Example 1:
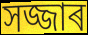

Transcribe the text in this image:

সজ্জাৰ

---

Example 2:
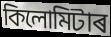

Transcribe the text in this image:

কিলোমিটাৰ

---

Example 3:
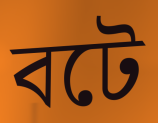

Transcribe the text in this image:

বটে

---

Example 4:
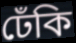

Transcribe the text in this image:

ঢেঁকি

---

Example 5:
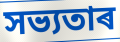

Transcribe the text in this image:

সভ্যতাৰ